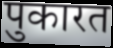
पुकारत